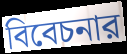
বিবেচনার